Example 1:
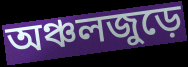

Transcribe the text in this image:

অঞ্চলজুড়ে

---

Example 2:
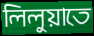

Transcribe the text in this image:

লিলুয়াতে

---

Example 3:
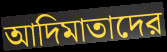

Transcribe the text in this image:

আদিমাতাদের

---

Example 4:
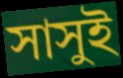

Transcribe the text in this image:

সাসুই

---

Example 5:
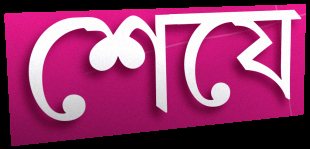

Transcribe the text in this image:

শেযে